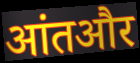
आंतऔर